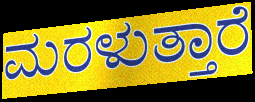
ಮರಳುತ್ತಾರೆ